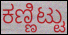
ಕಣ್ಣಿಟ್ಟು